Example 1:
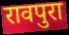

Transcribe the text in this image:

रावपुरा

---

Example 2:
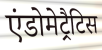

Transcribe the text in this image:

एंडोमेट्रैटिस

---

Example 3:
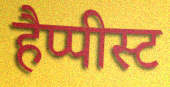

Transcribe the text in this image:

हैप्पीस्ट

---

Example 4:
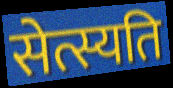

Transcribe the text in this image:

सेत्स्यति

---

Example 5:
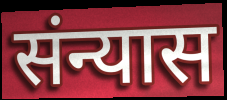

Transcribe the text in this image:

संन्यास